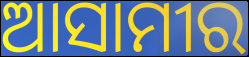
ଆସାମୀର